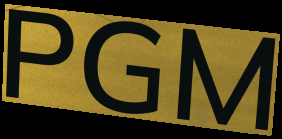
PGM